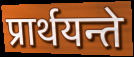
प्रार्थयन्ते